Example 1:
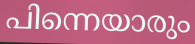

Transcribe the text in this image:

പിന്നെയാരും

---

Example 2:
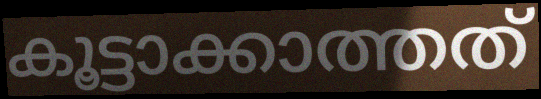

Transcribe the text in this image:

കൂട്ടാക്കാത്തത്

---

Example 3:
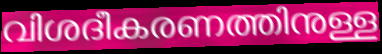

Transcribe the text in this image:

വിശദീകരണത്തിനുള്ള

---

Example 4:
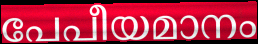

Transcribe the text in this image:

പേപീയമാനം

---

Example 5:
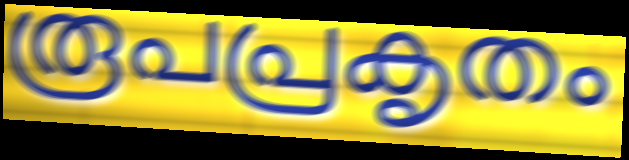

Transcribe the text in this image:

രൂപപ്രകൃതം